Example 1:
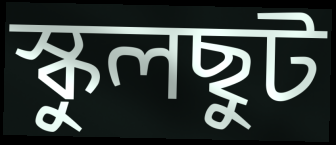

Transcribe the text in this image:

স্কুলছুট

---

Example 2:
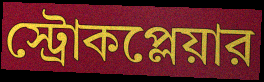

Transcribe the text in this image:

স্ট্রোকপ্লেয়ার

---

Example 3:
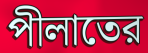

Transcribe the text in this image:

পীলাতের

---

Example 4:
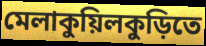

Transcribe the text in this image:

মেলাকুয়িলকুড়িতে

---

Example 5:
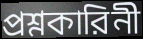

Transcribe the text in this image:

প্রশ্নকারিনী